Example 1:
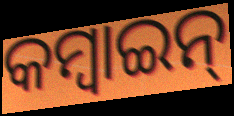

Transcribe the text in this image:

କମ୍ବାଇନ୍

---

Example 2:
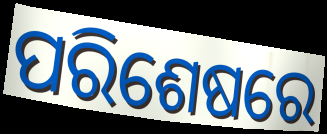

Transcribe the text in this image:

ପରିଶେଷରେ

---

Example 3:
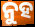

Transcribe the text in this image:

ନୁହ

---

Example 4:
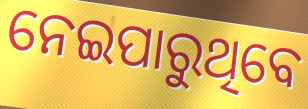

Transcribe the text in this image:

ନେଇପାରୁଥିବେ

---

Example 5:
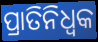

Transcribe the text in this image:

ପ୍ରାତିନିଧ୍ଵକ